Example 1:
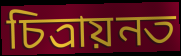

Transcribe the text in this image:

চিত্ৰায়নত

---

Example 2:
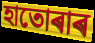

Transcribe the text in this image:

হাতোৰাৰ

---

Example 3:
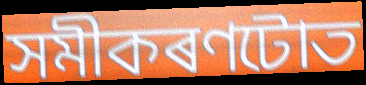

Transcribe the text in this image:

সমীকৰণটোত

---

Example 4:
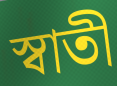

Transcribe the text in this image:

স্বাতী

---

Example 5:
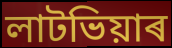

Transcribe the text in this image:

লাটভিয়াৰ